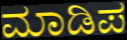
ಮಾಡಿಪ